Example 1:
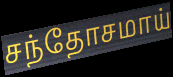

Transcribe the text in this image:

சந்தோசமாய்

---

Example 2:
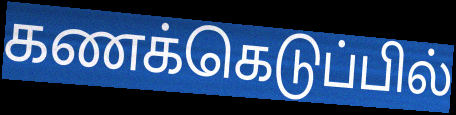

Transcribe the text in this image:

கணக்கெடுப்பில்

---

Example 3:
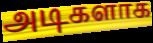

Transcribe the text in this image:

அடிகளாக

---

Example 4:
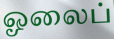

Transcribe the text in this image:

ஓலைப்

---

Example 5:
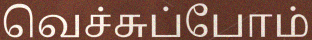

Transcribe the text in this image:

வெச்சுப்போம்